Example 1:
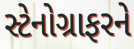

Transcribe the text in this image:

સ્ટેનોગ્રાફરને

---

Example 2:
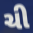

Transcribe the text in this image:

ચી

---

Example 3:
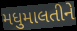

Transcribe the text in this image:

મધુમાલતીને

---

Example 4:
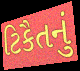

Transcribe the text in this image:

ટિકૈતનું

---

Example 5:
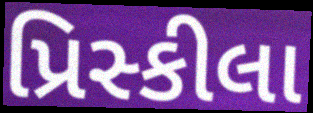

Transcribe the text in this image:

પ્રિસ્કીલા